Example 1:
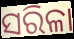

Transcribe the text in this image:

ସରିଳା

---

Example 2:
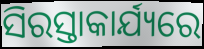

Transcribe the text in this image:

ସିରସ୍ତାକାର୍ଯ୍ୟରେ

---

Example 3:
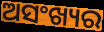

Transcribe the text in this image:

ଅସଂଖ୍ୟର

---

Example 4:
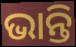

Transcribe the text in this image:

ଭାନ୍ତି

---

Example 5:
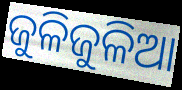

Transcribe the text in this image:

ଜୁଳିଜୁଳିଆ